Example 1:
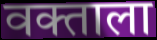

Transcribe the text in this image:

वक्ताला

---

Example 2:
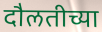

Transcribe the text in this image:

दौलतीच्या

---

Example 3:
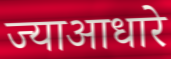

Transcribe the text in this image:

ज्याआधारे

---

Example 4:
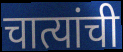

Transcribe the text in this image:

चात्यांची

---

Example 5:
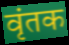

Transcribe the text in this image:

वृंतक